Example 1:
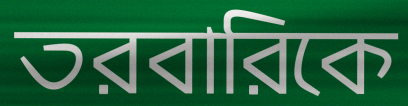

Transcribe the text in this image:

তরবারিকে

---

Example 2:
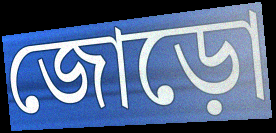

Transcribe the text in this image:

জোড়ো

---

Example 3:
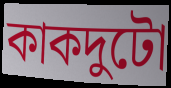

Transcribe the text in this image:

কাকদুটো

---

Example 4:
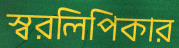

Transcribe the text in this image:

স্বরলিপিকার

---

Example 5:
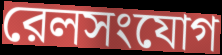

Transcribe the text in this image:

রেলসংযোগ